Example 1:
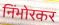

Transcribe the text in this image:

निंभोरकर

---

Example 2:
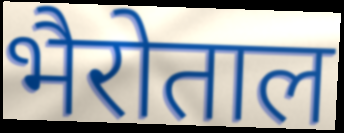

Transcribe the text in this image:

भैरोताल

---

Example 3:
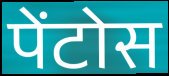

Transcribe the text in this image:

पेंटोस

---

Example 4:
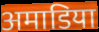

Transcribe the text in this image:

अमाडिया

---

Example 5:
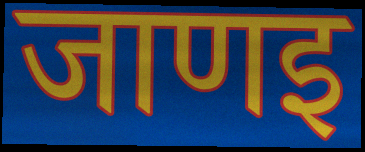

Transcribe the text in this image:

जाणइ